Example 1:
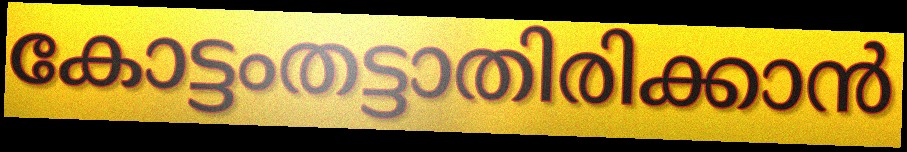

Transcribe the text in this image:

കോട്ടംതട്ടാതിരിക്കാൻ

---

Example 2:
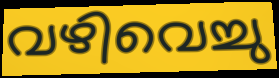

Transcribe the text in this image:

വഴിവെച്ചു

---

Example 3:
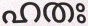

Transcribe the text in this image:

ഹതഃ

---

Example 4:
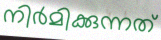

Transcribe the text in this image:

നിർമിക്കുന്നത്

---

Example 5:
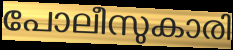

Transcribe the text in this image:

പോലീസുകാരി